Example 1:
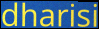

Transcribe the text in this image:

dharisi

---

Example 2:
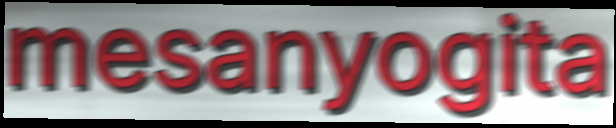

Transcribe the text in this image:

mesanyogita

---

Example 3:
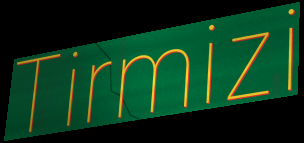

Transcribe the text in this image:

Tirmizi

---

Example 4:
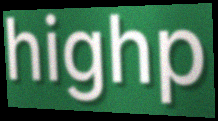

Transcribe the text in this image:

highp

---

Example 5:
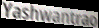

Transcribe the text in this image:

Yashwantrao